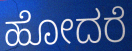
ಹೋದರೆ